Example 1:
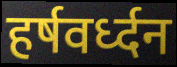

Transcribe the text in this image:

हर्षवर्ध्दन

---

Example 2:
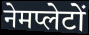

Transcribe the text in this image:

नेमप्लेटों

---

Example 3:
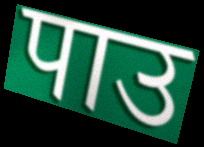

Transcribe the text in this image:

पाउ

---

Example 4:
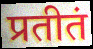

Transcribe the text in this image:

प्रतीतं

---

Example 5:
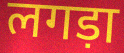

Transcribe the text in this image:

लगड़ा